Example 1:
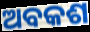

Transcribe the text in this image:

ଅବକଶ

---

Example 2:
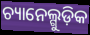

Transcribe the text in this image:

ଚ୍ୟାନେଲ୍ଗୁଡ଼ିକ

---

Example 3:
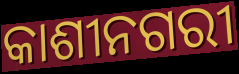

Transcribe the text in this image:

କାଶୀନଗରୀ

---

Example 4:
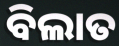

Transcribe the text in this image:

ବିଲାତ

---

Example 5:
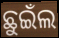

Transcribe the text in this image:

ଛୁଇଁଲ